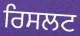
ਰਿਸਲਟ